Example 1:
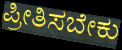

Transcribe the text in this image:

ಪ್ರೀತಿಸಬೇಕು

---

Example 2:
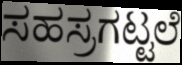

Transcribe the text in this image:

ಸಹಸ್ರಗಟ್ಟಲೆ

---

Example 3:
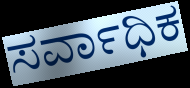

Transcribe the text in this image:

ಸರ್ವಾಧಿಕ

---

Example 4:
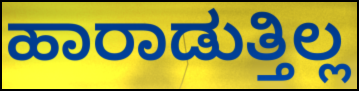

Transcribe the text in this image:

ಹಾರಾಡುತ್ತಿಲ್ಲ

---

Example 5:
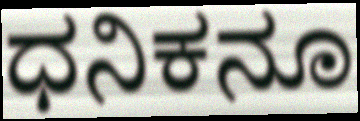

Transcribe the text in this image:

ಧನಿಕನೂ